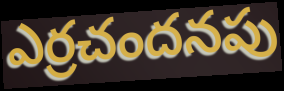
ఎర్రచందనపు